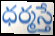
ధర్మస్తే